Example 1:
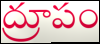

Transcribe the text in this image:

ద్రూపం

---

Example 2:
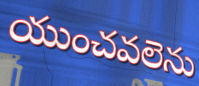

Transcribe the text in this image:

యుంచవలెను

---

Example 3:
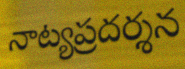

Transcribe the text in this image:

నాట్యప్రదర్శన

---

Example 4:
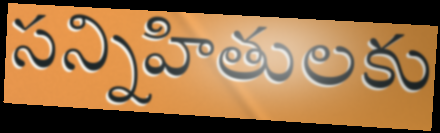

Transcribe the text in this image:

సన్నిహితులకు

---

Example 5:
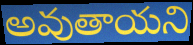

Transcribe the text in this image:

అవుతాయని